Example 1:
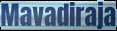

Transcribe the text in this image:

Mavadiraja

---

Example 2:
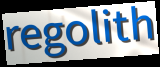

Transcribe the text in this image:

regolith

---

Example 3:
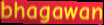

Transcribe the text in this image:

bhagawan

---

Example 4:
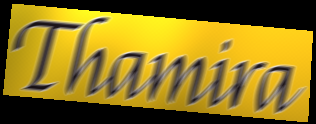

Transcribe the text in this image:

Thamira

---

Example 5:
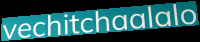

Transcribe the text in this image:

vechitchaalalo